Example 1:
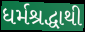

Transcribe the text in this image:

ધર્મશ્રદ્ધાથી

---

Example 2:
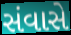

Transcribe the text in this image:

સંવાસે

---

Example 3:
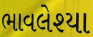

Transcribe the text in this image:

ભાવલેશ્યા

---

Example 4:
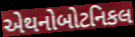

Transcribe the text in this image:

એથનોબોટનિકલ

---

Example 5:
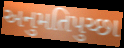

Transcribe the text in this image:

અનુમતિપુચ્છા